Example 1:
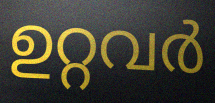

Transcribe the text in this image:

ഉറ്റവർ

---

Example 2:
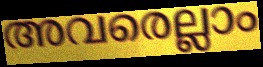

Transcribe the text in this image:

അവരെല്ലാം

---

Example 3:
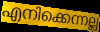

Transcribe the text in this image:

എനിക്കെന്നല്ല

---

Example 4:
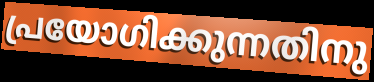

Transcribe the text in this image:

പ്രയോഗിക്കുന്നതിനു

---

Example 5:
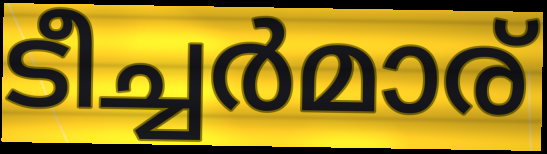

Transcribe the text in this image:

ടീച്ചർമാര്